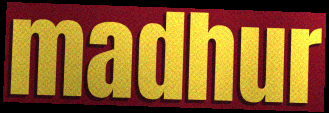
madhur